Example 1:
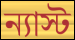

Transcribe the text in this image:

ন্যাস্ট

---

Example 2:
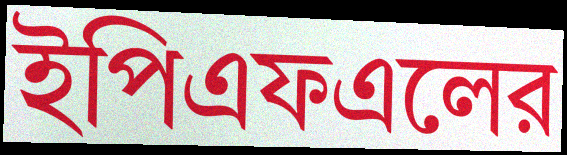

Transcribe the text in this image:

ইপিএফএলের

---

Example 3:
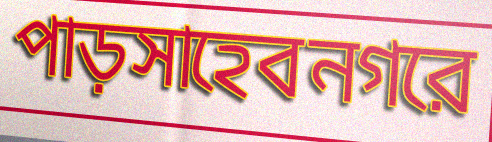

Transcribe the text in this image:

পাড়সাহেবনগরে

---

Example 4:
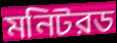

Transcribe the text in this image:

মনিটরড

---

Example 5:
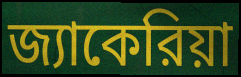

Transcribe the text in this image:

জ্যাকেরিয়া